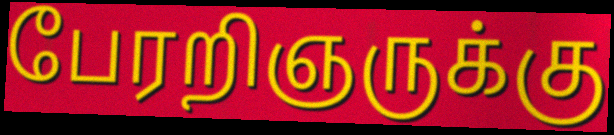
பேரறிஞருக்கு